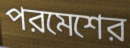
পরমেশের